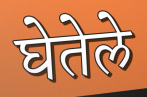
घेतेले